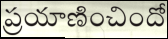
ప్రయాణించిందో